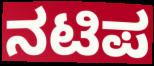
ನಟಿಪ